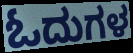
ಓದುಗಳ